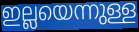
ഇല്ലയെന്നുള്ള